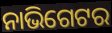
ନାଭିଗେଟର